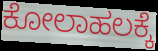
ಕೋಲಾಹಲಕ್ಕೆ